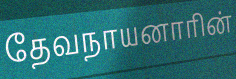
தேவநாயனாரின்